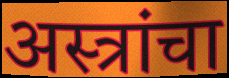
अस्त्रांचा